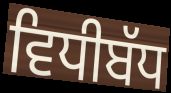
ਵਿਧੀਬੱਧ